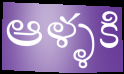
ఆళ్ళకి